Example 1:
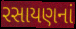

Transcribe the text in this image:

રસાયણનાં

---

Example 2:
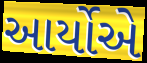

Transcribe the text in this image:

આર્યોએ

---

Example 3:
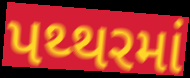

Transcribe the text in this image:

પથ્થરમાં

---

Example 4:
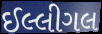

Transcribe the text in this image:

ઈલ્લીગલ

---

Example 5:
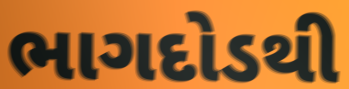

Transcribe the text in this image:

ભાગદોડથી